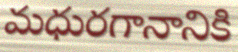
మధురగానానికి